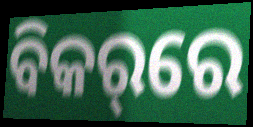
ବିକର୍‌ରେ